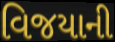
વિજયાની